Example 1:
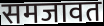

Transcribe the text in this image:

समजावत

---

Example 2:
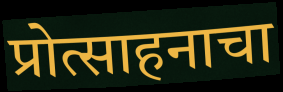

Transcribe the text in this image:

प्रोत्साहनाचा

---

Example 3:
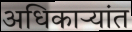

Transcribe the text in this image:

अधिकाऱ्यांत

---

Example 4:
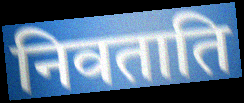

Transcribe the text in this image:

निवताति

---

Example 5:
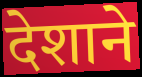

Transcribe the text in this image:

देशाने